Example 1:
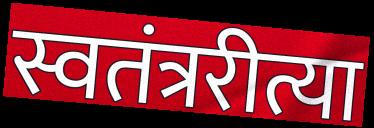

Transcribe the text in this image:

स्वतंत्ररीत्या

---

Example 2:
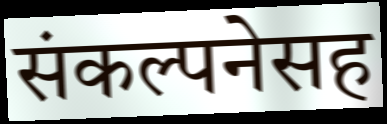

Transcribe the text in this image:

संकल्पनेसह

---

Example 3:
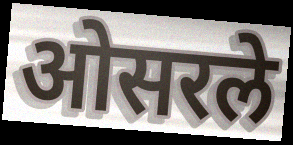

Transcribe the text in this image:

ओसरले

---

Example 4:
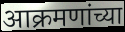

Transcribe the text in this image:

आक्रमणांच्या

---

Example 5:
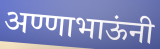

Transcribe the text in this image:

अण्णाभाऊंनी